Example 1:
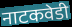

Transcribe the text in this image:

नाटकवेडी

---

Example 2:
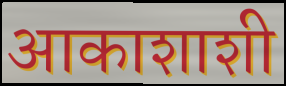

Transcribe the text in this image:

आकाशाशी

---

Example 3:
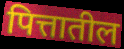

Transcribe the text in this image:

पित्तातील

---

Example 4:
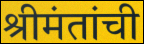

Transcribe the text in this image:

श्रीमंतांची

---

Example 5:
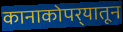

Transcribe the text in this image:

कानाकोपर्‍यातून